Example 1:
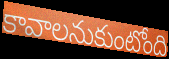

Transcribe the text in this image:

కావాలనుకుంటోంది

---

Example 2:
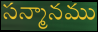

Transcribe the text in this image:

సన్మానము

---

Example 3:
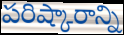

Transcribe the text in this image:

పరిష్కారాన్ని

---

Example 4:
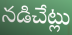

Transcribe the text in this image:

నడిచేట్లు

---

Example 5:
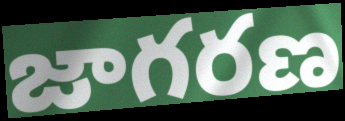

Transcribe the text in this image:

జాగరణ